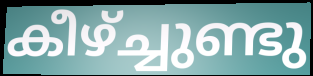
കീഴ്ച്ചുണ്ടു